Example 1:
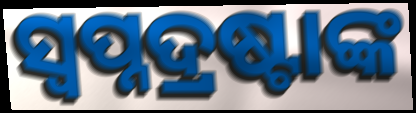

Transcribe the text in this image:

ସ୍ୱପ୍ନଦ୍ରଷ୍ଟାଙ୍କ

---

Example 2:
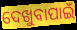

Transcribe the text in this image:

ଦେଖୁବାପାଇଁ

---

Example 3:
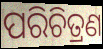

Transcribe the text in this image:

ପରିଚିତ୍ରଣ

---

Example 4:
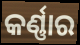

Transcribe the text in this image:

କର୍ଣ୍ଣାର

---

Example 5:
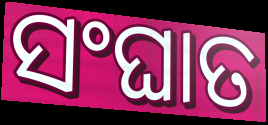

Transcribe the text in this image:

ସଂଘାତ